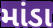
માંડા